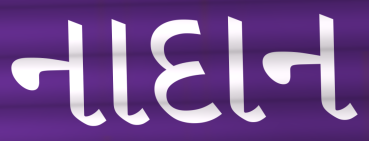
નાદાન